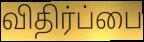
விதிர்ப்பை